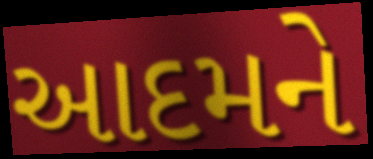
આદમને